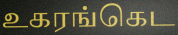
உகரங்கெட